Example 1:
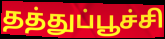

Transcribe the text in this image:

தத்துப்பூச்சி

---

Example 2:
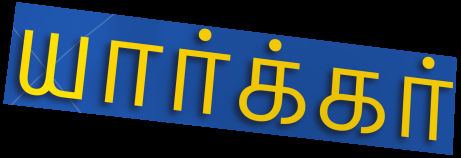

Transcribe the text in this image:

யார்க்கர்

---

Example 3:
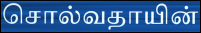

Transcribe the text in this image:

சொல்வதாயின்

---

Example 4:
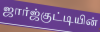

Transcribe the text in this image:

ஜார்ஜ்குட்டியின்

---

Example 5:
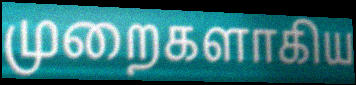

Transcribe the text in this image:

முறைகளாகிய